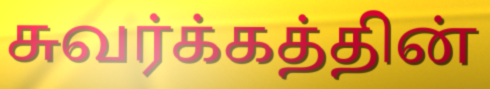
சுவர்க்கத்தின்